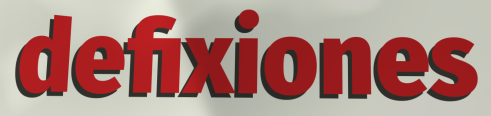
defixiones